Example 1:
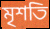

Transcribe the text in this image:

মৃশতি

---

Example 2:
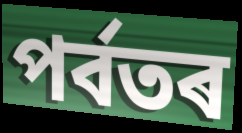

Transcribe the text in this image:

পৰ্বতৰ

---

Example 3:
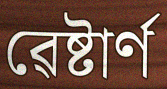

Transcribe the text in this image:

ৱেষ্টাৰ্ণ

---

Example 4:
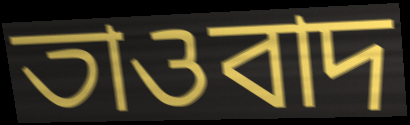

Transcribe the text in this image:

তাওবাদ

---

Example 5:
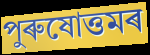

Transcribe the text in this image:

পুৰুষোত্তমৰ